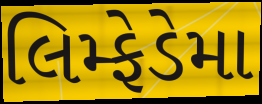
લિમ્ફેડેમા